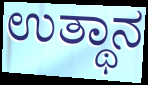
ಉತ್ಥಾನ